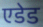
एडेड